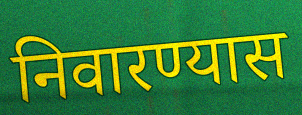
निवारण्यास